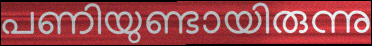
പണിയുണ്ടായിരുന്നു